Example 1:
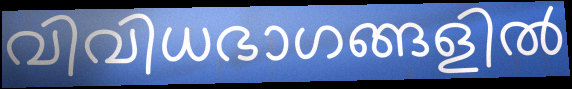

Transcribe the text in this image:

വിവിധഭാഗങ്ങളിൽ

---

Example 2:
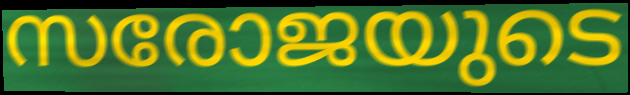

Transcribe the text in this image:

സരോജയുടെ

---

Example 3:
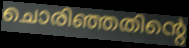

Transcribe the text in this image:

ചൊരിഞ്ഞതിന്റെ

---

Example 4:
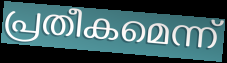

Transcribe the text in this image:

പ്രതീകമെന്ന്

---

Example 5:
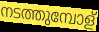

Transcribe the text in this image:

നടത്തുമ്പോള്